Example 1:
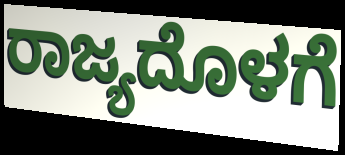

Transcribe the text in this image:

ರಾಜ್ಯದೊಳಗೆ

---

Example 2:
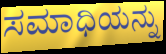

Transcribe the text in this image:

ಸಮಾಧಿಯನ್ನು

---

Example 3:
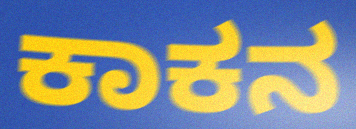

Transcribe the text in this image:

ಕಾಕನ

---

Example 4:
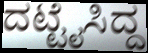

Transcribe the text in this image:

ದಟ್ಟೈಸಿದ್ದ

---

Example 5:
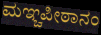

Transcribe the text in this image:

ಮಞ್ಚಪೀಠಾನಂ